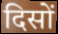
दिसों